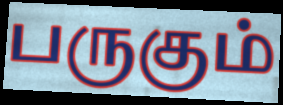
பருகும்